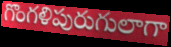
గొంగళిపురుగులాగా